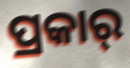
ପ୍ରକାର୍